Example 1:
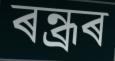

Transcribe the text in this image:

ৰন্ধ্ৰৰ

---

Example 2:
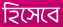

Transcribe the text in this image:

হিসেবে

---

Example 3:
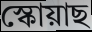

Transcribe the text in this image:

স্কোয়াছ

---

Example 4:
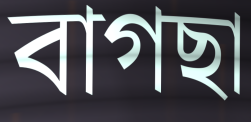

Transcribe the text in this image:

বাগছা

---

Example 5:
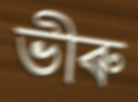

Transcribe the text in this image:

ভীৰু